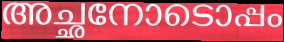
അച്ഛനോടൊപ്പം